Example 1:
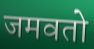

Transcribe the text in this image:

जमवतो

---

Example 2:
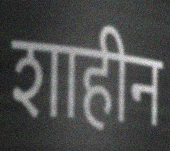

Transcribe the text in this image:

शाहीन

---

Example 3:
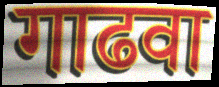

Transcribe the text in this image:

गाढवा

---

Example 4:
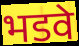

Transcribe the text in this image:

भडवे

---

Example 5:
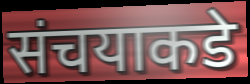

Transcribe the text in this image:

संचयाकडे